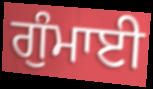
ਗੁੰਮਾਈ